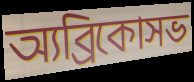
অ্যব্রিকোসভ